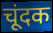
चूंदक